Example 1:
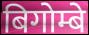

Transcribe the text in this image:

बिगोम्बे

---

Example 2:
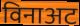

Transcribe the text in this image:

विनाअट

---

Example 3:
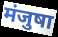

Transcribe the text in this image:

मंजुषा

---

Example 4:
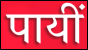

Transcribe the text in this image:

पायीं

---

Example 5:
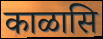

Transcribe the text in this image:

काळासि